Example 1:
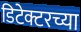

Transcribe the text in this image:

डिटेक्टरच्या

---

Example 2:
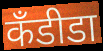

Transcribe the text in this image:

कॅंडीडा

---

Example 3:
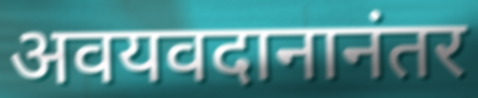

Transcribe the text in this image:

अवयवदानानंतर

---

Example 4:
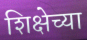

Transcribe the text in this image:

शिक्षेच्या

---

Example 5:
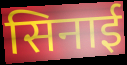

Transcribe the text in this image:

सिनाई